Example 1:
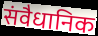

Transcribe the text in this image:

संवैधानिक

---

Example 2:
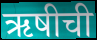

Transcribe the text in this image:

ऋषीची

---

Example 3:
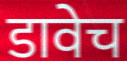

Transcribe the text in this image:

डावेच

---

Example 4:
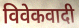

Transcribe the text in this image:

विवेकवादी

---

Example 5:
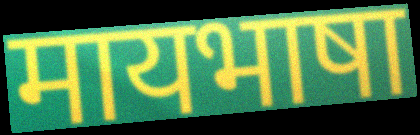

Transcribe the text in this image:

मायभाषा